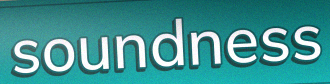
soundness